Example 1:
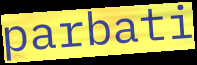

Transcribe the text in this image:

parbati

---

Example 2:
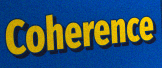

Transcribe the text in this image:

Coherence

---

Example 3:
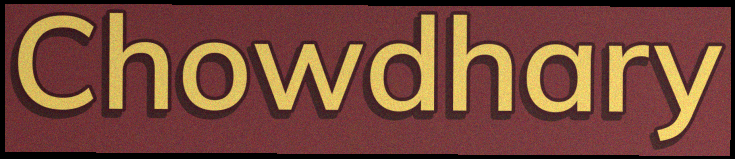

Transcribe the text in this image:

Chowdhary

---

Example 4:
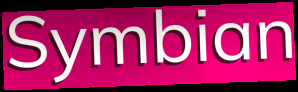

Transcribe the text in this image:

Symbian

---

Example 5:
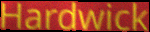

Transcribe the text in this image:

Hardwick